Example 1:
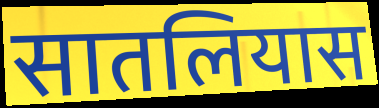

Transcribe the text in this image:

सातलियास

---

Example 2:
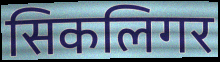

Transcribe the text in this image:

सिकलिगर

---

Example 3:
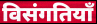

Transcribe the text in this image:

विसंगतियाँ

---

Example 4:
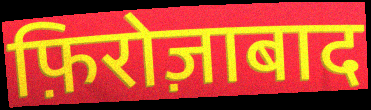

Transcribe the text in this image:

फ़िरोज़ाबाद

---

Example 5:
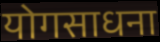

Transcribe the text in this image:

योगसाधना